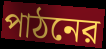
পাঠনের